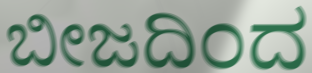
ಬೀಜದಿಂದ